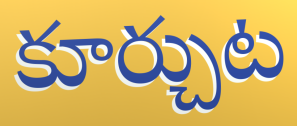
కూర్చుట